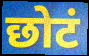
छोटं